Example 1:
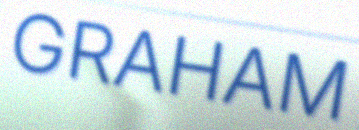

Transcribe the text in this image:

GRAHAM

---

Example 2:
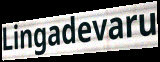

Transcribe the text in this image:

Lingadevaru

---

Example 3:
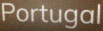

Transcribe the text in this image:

Portugal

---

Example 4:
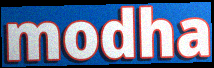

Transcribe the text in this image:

modha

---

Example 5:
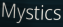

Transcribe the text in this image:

Mystics